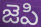
జెపి